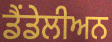
ਡੈਂਡੇਲੀਅਨ